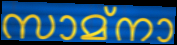
സാമ്നാ